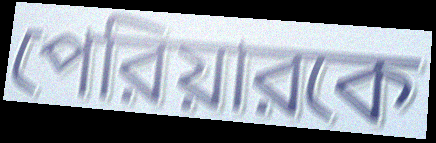
পেরিয়ারকে